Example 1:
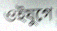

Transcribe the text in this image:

ওইযুগে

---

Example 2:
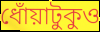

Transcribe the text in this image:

ধোঁয়াটুকুও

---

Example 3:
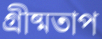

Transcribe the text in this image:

গ্রীষ্মতাপ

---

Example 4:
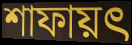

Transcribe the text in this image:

শাফায়ৎ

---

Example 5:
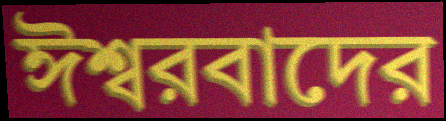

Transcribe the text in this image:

ঈশ্বরবাদের